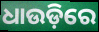
ଧାଉଡ଼ିରେ